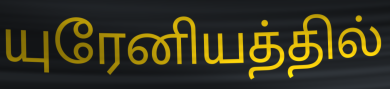
யுரேனியத்தில்